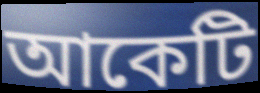
আকেটি